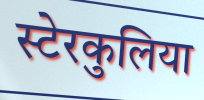
स्टेरकुलिया